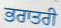
ਭਰਾਤਰੀ